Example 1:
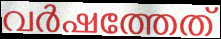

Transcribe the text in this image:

വർഷത്തേത്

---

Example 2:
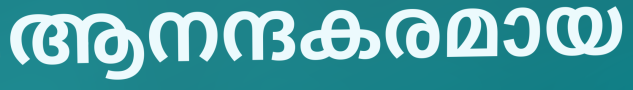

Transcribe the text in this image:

ആനന്ദകരമായ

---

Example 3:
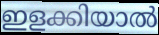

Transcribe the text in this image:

ഇളക്കിയാൽ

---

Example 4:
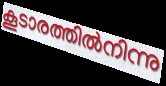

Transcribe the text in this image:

കൂടാരത്തിൽനിന്നു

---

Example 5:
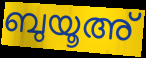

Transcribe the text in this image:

ബുയൂഅ്